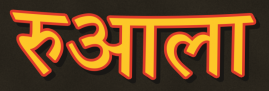
रुआला